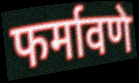
फर्मावणे